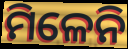
ମିଳେନି